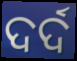
ଦର୍ଦ